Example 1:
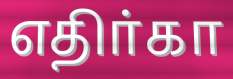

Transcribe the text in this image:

எதிர்கா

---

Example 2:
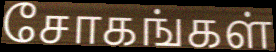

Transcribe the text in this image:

சோகங்கள்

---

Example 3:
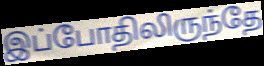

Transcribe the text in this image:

இப்போதிலிருந்தே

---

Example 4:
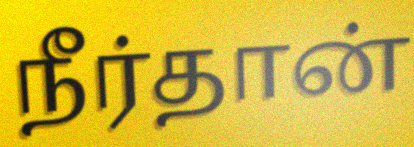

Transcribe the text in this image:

நீர்தான்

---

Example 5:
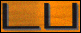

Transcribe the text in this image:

டப